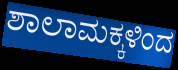
ಶಾಲಾಮಕ್ಕಳಿಂದ